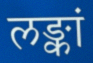
लङ्कां